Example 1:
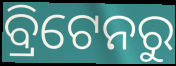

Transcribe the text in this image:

ବ୍ରିଟେନରୁ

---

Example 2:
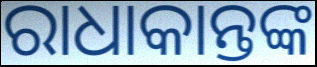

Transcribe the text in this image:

ରାଧାକାନ୍ତଙ୍କ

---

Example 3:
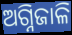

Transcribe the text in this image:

ଅଗ୍ନିଜାଳି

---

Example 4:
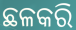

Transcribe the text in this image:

ଛଳକରି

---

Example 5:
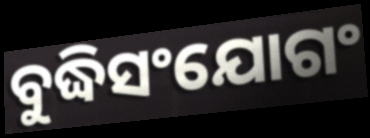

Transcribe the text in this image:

ବୁଦ୍ଧିସଂଯୋଗଂ